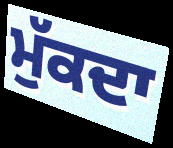
ਮੁੱਕਦਾ